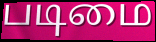
படிமை